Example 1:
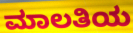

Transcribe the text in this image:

ಮಾಲತಿಯ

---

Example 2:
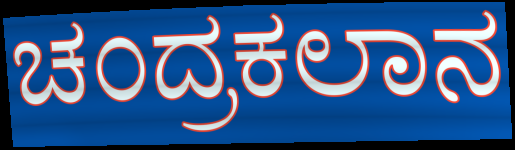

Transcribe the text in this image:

ಚಂದ್ರಕಲಾನ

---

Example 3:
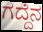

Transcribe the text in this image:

ಗದ್ದೆನ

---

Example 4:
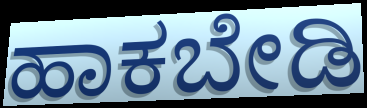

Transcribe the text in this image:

ಹಾಕಬೇಡಿ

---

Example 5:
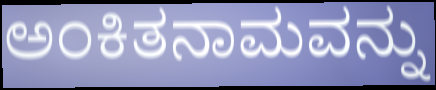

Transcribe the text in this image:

ಅಂಕಿತನಾಮವನ್ನು